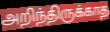
அறிந்திருக்காத